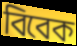
বিবেক